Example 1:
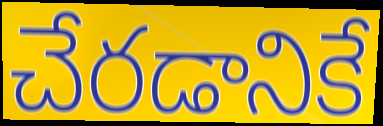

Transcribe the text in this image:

చేరడానికే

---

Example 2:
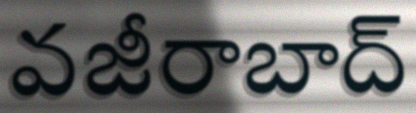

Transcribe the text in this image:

వజీరాబాద్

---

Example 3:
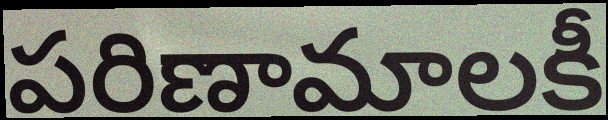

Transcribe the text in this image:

పరిణామాలకీ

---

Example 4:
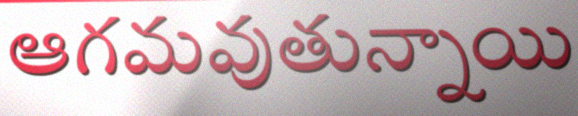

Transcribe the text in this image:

ఆగమవుతున్నాయి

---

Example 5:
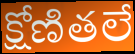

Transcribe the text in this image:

క్షోణితలే